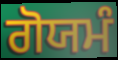
ਗੋਯਮੰ